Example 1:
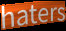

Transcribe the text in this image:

haters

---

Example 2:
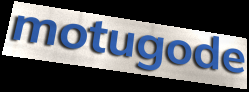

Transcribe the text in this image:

motugode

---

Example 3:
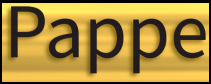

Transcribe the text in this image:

Pappe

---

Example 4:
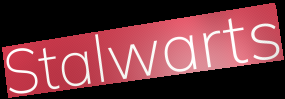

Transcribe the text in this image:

Stalwarts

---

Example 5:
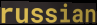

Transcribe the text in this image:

russian